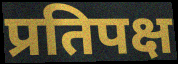
प्रतिपक्ष